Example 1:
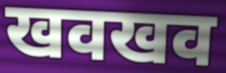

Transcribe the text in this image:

खवखव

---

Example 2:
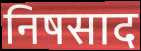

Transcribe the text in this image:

निषसाद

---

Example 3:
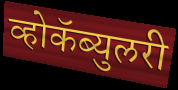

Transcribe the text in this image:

व्होकॅब्युलरी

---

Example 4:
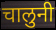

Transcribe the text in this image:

चालुनी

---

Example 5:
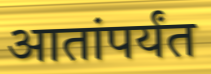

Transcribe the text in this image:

आतांपर्यंत